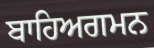
ਬਾਹਿਅਗਮਨ